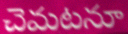
చెమటనూ